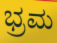
ಭ್ರಮ